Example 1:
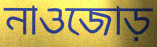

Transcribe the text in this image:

নাওজোড়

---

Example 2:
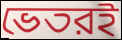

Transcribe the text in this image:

ভেতরই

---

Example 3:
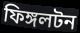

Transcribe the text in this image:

ফিঙ্গলটন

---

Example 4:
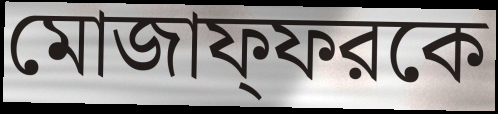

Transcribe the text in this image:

মোজাফ্ফরকে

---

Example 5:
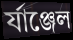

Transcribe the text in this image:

র্যাঞ্জেল